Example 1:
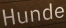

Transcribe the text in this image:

Hunde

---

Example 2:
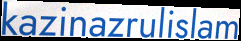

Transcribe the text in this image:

kazinazrulislam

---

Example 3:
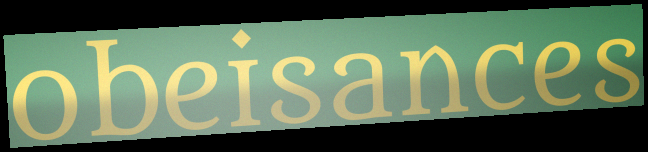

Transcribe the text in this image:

obeisances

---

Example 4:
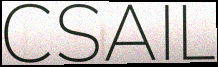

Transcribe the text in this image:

CSAIL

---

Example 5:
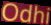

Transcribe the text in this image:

Odhi